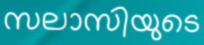
സലാസിയുടെ